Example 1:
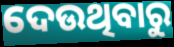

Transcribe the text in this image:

ଦେଉଥିବାରୁ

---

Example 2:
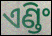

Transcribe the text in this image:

ଏଣ୍ଡିଂ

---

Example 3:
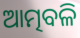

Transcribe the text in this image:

ଆତ୍ମବଳି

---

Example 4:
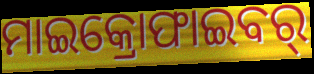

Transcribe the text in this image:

ମାଇକ୍ରୋଫାଇବର୍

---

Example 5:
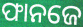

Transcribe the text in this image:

ଫାନଜେ